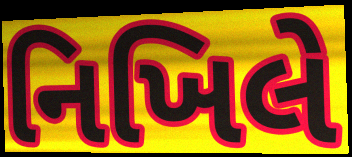
નિખિલે